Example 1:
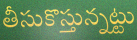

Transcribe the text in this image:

తీసుకొస్తున్నట్టు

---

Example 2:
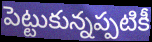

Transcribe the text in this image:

పెట్టుకున్నప్పటికీ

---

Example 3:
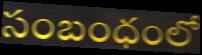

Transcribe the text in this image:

సంబంధంలో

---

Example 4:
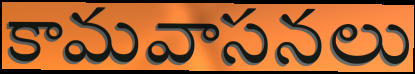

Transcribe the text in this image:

కామవాసనలు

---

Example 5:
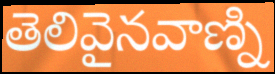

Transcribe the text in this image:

తెలివైనవాణ్ని